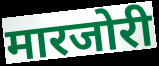
मारजोरी